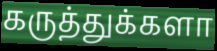
கருத்துக்களா